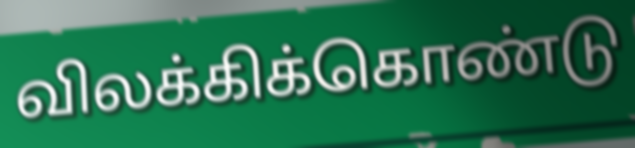
விலக்கிக்கொண்டு